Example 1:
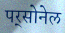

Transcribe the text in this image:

पर्सोनेल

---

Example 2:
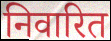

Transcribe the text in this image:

निवारित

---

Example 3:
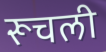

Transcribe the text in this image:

रूचली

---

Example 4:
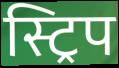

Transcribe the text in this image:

स्ट्रिप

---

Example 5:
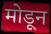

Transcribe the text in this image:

मोडून